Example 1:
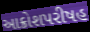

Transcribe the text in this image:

આક્રોશપરીષહ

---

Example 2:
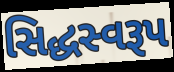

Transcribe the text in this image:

સિદ્ધસ્વરૂપ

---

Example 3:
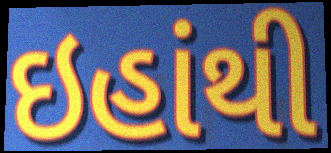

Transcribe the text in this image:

ઇહાંથી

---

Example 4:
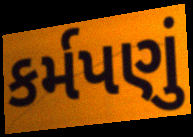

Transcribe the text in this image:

કર્મપણું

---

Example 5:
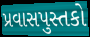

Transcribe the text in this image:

પ્રવાસપુસ્તકો